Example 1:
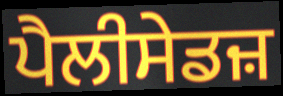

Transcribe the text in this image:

ਪੈਲੀਸੇਡਜ਼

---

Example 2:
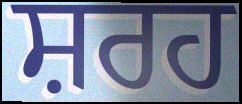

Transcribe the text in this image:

ਸ਼ਰਹ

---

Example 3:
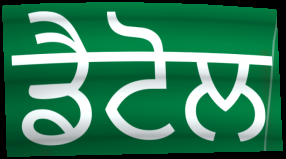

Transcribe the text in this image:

ਡੈਟੋਲ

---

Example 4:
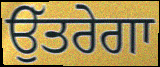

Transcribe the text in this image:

ਉੱਤਰੇਗਾ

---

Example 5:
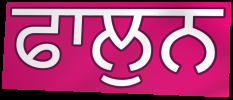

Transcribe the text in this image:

ਫਾਲੁਨ